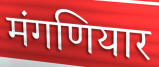
मंगणियार